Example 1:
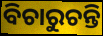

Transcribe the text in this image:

ବିଚାରୁଚନ୍ତି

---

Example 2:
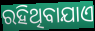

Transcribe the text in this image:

ରହିଥିବାଯାଏ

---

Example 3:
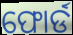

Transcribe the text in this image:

ଫୋର୍ଡ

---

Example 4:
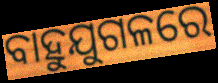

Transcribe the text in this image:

ବାହୁଯୁଗଳରେ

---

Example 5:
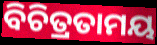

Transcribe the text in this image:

ବିଚିତ୍ରତାମୟ